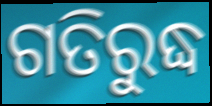
ଗତିରୁଦ୍ଧ